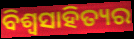
ବିଶ୍ଵସାହିତ୍ୟର